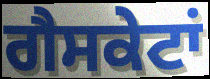
ਗੈਸਕੇਟਾਂ